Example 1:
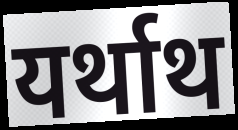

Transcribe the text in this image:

यर्थाथ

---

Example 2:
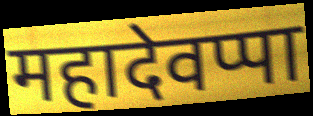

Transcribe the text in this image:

महादेवप्पा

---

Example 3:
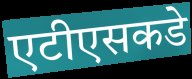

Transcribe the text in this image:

एटीएसकडे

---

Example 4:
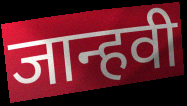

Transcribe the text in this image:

जान्हवी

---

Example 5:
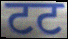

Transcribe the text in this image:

टट